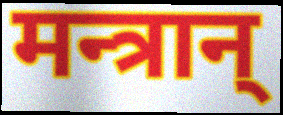
मन्त्रान्